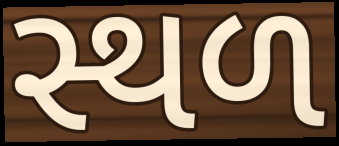
સ્થળ